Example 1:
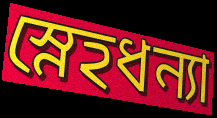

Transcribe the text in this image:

স্নেহধন্যা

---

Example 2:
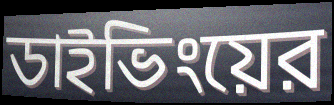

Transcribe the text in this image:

ডাইভিংয়ের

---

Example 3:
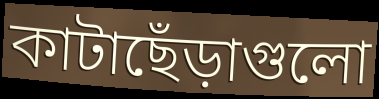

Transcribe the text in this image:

কাটাছেঁড়াগুলো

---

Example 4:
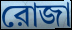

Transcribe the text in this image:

রোজা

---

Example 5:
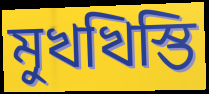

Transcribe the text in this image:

মুখখিস্তি